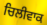
ਚਿਲੀਵਾਕ